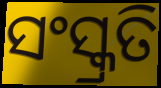
ସଂସ୍କ୍ରତି